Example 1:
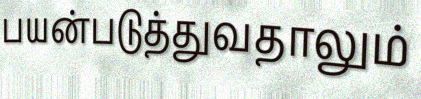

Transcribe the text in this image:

பயன்படுத்துவதாலும்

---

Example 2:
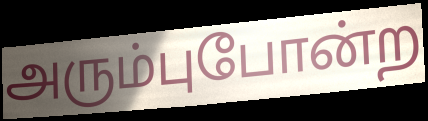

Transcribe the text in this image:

அரும்புபோன்ற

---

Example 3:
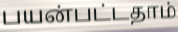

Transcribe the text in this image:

பயன்பட்டதாம்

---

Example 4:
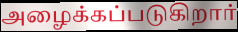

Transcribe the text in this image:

அழைக்கப்படுகிறார்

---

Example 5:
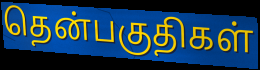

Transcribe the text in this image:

தென்பகுதிகள்